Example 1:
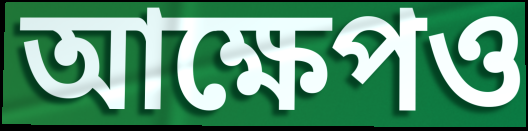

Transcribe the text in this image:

আক্ষেপও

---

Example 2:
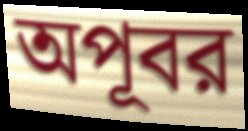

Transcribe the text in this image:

অপূবর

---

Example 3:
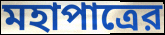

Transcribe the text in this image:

মহাপাত্রের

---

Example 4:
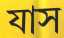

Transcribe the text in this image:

যাস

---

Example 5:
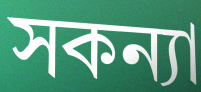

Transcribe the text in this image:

সকন্যা